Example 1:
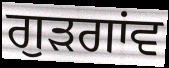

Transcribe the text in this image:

ਗੁੜਗਾਂਵ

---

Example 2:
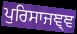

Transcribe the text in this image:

ਪੁਰਿਸਾਜਞ੍ਞ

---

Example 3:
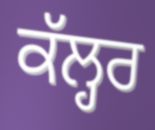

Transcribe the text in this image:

ਕੱਲ੍ਹਰ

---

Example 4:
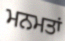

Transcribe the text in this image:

ਮਨਮਤਾਂ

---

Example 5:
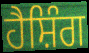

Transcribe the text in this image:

ਹੈਸ਼ਿੰਗ